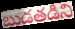
బుడతడిని